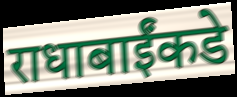
राधाबाईंकडे